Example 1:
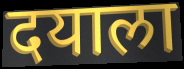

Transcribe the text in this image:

दयाला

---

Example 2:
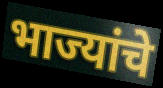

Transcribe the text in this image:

भाज्यांचे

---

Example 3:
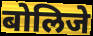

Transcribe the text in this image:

बोलिजे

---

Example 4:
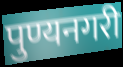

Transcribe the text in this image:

पुण्यनगरी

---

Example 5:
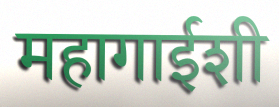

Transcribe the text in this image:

महागाईशी